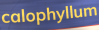
calophyllum